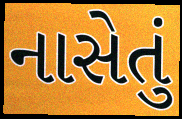
નાસેતું